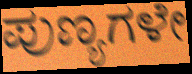
ಪುಣ್ಯಗಳೇ